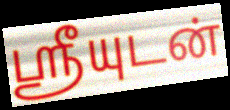
ஸ்ரீயுடன்